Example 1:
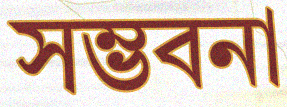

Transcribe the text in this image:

সম্ভবনা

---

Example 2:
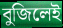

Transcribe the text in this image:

বুজিলেই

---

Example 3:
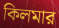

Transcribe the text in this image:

কিলমার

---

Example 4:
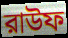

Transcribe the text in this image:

রাউফ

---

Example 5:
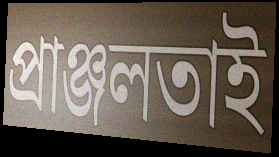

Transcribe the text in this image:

প্রাঞ্জলতাই